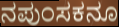
ನಪುಂಸಕನೂ